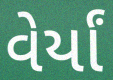
વેર્યાં